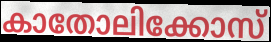
കാതോലിക്കോസ്